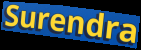
Surendra